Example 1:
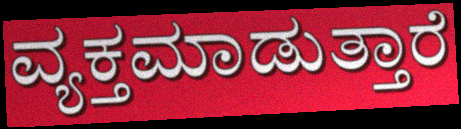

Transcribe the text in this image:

ವ್ಯಕ್ತಮಾಡುತ್ತಾರೆ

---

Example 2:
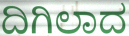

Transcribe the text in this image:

ದಿಗಿಲಾದ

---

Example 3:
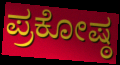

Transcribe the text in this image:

ಪ್ರಕೋಷ್ಠ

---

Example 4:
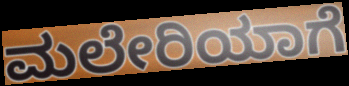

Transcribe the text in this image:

ಮಲೇರಿಯಾಗೆ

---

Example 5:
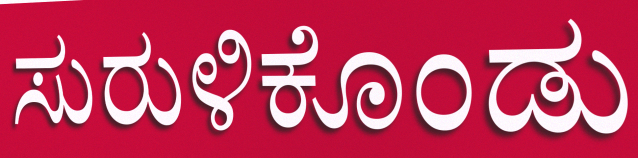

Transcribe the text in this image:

ಸುರುಳಿಕೊಂಡು